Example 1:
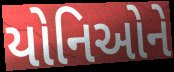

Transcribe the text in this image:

યોનિઓને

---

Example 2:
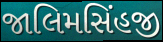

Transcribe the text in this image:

જાલિમસિંહજી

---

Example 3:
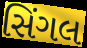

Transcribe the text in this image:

સિંગલ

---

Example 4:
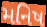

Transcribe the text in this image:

મનિષ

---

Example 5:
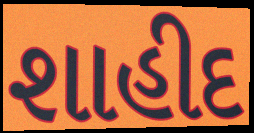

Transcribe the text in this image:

શાહીદ